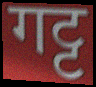
गट्ट